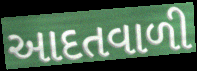
આદતવાળી